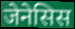
जेनेसिस